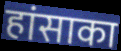
हांसाका